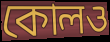
কোলও